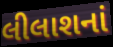
લીલાશનાં